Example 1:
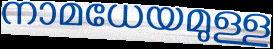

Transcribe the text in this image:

നാമധേയമുള്ള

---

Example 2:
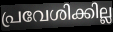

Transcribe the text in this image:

പ്രവേശിക്കില്ല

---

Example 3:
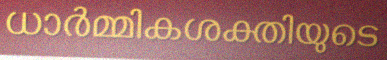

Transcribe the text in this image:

ധാർമ്മികശക്തിയുടെ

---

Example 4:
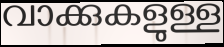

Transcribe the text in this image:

വാക്കുകളുള്ള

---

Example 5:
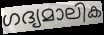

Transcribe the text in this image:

ഗദ്യമാലിക